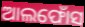
ଆଲଫୋଁସ